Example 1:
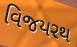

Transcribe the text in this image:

વિજયરથ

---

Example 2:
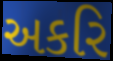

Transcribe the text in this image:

અકરિ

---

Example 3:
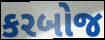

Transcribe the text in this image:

કરબોજ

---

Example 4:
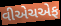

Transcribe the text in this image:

વીએચએફ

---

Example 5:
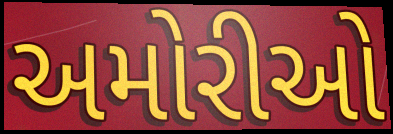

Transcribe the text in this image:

અમોરીઓ